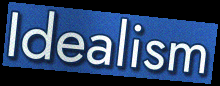
Idealism